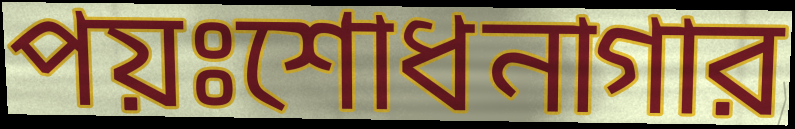
পয়ঃশোধনাগার